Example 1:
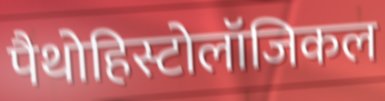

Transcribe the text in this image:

पैथोहिस्टोलॉजिकल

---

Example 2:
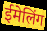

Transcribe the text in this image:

ईमेलिंग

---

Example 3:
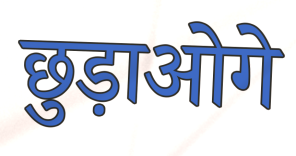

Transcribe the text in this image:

छुड़ाओगे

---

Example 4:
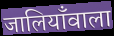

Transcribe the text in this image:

जालियाँवाला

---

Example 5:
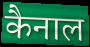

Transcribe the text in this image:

कैनाल